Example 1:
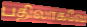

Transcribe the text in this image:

பதிலாகவே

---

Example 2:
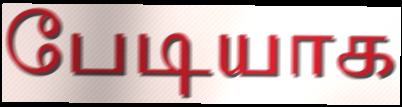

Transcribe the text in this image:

பேடியாக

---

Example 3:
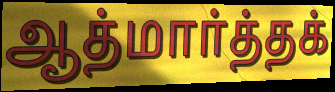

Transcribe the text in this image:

ஆத்மார்த்தக்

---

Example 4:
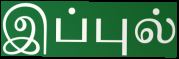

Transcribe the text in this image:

இப்புல்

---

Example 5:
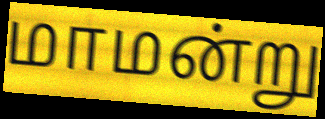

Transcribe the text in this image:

மாமன்று